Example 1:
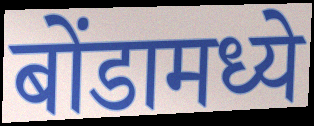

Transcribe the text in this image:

बोंडामध्ये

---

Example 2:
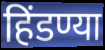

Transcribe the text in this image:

हिंडण्या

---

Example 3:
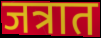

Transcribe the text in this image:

जत्रात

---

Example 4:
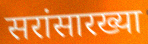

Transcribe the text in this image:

सरांसारख्या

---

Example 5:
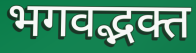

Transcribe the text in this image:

भगवद्भक्त